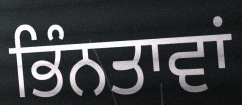
ਭਿੰਨਤਾਵਾਂ